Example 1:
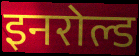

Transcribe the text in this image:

इनरोल्ड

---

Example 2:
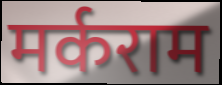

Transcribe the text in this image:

मर्कराम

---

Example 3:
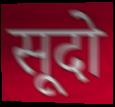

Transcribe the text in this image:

सूदो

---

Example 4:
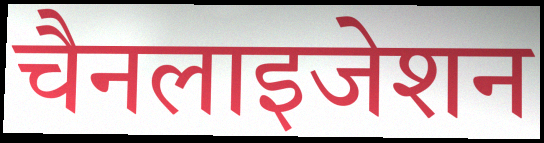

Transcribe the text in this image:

चैनलाइजेशन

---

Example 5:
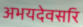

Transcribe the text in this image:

अभयदेवसरि